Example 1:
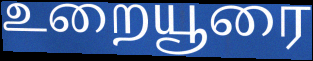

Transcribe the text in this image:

உறையூரை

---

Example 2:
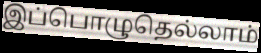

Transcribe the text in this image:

இப்பொழுதெல்லாம்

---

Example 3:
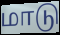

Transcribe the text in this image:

மாடு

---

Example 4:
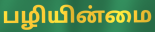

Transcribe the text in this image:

பழியின்மை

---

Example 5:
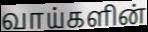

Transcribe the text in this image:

வாய்களின்